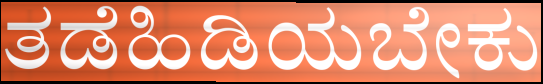
ತಡೆಹಿಡಿಯಬೇಕು